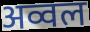
अव्वल